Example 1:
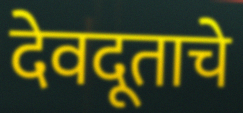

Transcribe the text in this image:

देवदूताचे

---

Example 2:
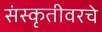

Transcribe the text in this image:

संस्कृतीवरचे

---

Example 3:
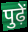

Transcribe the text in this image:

पुढ़ें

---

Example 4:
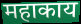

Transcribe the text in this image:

महाकाय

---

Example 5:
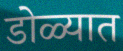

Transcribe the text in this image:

डोळ्यात